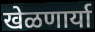
खेळणार्या